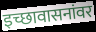
इच्छावासनांवर